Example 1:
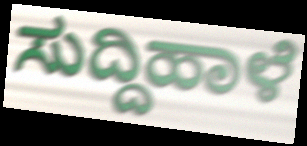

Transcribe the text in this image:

ಸುದ್ದಿಹಾಳೆ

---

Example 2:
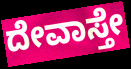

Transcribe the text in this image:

ದೇವಾಸ್ತೇ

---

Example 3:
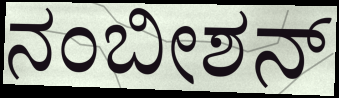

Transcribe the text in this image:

ನಂಬೀಶನ್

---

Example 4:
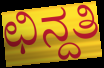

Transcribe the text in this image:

ಛಿನ್ದತಿ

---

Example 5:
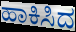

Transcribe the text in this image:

ಹಾಕಿಸಿದ